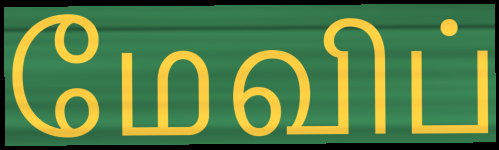
மேவிப்